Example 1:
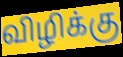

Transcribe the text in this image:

விழிக்கு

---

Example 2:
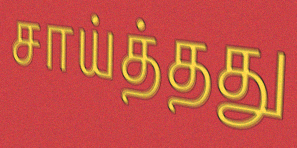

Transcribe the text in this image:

சாய்த்தது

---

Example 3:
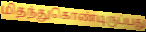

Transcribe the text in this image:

மிதந்துகொண்டிருப்பது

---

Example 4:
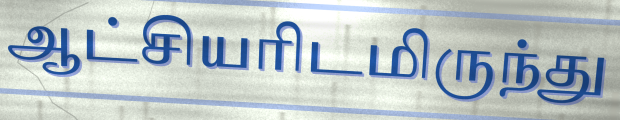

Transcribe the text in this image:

ஆட்சியரிடமிருந்து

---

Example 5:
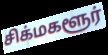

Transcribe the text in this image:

சிக்மகளூர்